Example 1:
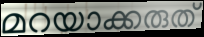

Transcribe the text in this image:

മറയാക്കരുത്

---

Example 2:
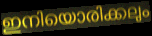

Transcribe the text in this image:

ഇനിയൊരിക്കലും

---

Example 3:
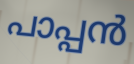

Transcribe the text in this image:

പാപ്പൻ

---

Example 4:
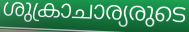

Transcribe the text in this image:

ശുക്രാചാര്യരുടെ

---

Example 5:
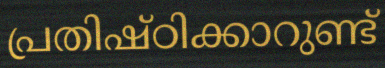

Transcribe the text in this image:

പ്രതിഷ്ഠിക്കാറുണ്ട്